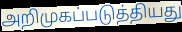
அறிமுகப்படுத்தியது